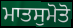
ਮਾਤਸੁਮੋਤੋ